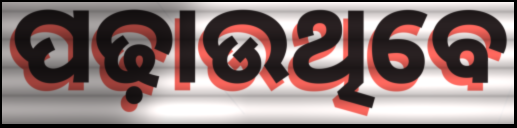
ପଢ଼ାଉଥିବେ